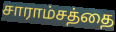
சாராம்சத்தை